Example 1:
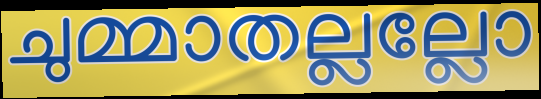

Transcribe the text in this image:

ചുമ്മാതല്ലല്ലോ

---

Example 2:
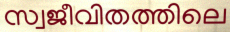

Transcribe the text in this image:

സ്വജീവിതത്തിലെ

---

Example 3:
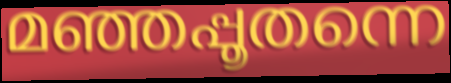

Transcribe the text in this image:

മഞ്ഞപ്പൂതന്നെ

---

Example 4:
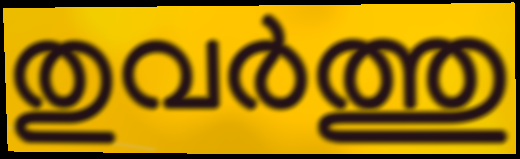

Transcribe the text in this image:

തുവർത്തു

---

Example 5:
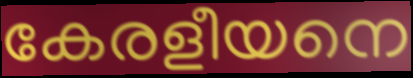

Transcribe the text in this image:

കേരളീയനെ